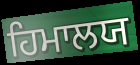
ਹਿਮਾਲਯ